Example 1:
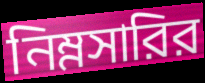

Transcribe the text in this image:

নিম্নসারির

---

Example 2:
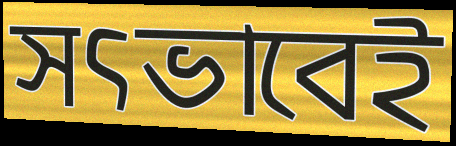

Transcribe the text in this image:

সৎভাবেই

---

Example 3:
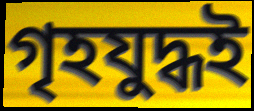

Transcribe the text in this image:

গৃহযুদ্ধই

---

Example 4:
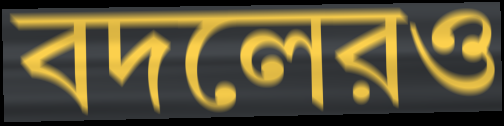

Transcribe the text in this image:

বদলেরও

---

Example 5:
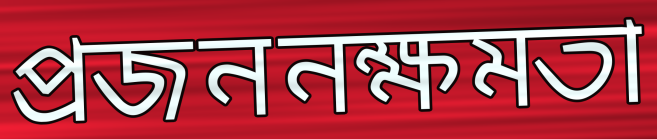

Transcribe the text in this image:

প্রজননক্ষমতা